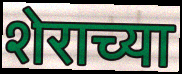
शेराच्या